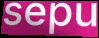
sepu